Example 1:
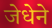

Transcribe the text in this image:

जेधेने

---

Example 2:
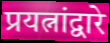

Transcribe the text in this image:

प्रयत्नांद्वारे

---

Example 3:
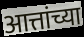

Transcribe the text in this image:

आत्तांच्या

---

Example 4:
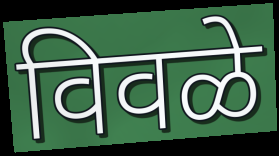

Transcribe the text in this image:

विवळे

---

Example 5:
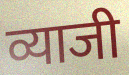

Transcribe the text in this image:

व्याजी